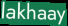
lakhaay